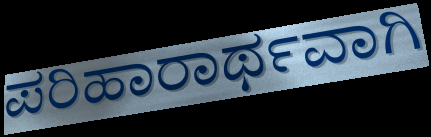
ಪರಿಹಾರಾರ್ಥವಾಗಿ